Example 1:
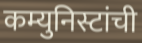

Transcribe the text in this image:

कम्युनिस्टांची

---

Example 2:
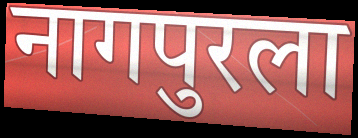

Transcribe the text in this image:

नागपुरला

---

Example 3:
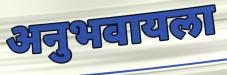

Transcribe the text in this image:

अनुभवायला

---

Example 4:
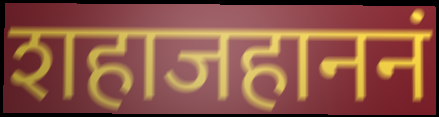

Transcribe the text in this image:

शहाजहाननं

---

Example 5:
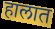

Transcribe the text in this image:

हालात